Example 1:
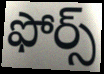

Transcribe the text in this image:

ఫోర్స్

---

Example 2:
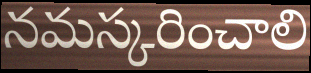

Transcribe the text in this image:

నమస్కరించాలి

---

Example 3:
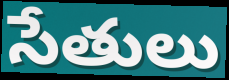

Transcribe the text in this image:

సేతులు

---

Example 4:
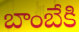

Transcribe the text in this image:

బాంబేకి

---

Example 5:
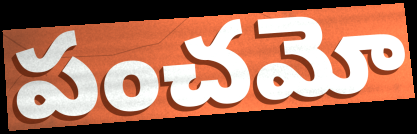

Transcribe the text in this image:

పంచమో